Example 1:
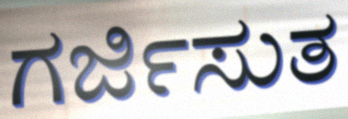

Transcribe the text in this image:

ಗರ್ಜಿಸುತ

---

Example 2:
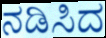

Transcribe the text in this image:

ನಡಿಸಿದ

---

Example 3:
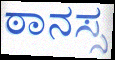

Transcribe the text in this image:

ಠಾನಸ್ಸ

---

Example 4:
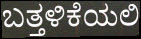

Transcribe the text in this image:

ಬತ್ತಳಿಕೆಯಲಿ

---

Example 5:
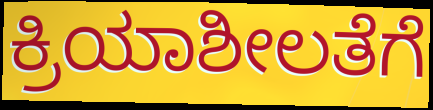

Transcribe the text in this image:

ಕ್ರಿಯಾಶೀಲತೆಗೆ